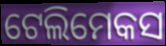
ଟେଲିମେକସ